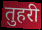
तुहरी